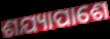
ଶଯ୍ୟାପାଶେ